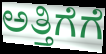
ಅತ್ತಿಗೆಗೆ